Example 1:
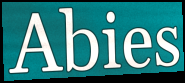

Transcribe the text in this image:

Abies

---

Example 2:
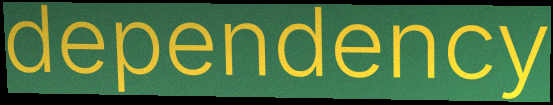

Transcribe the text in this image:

dependency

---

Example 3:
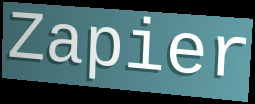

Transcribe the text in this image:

Zapier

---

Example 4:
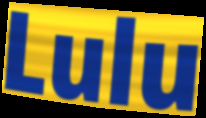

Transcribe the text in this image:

Lulu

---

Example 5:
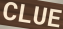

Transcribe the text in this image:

CLUE